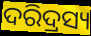
ଦରିଦ୍ରସ୍ୟ